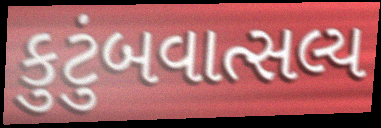
કુટુંબવાત્સલ્ય